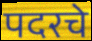
पदरचे